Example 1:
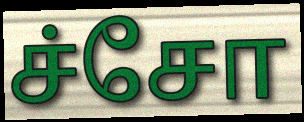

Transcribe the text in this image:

ச்சோ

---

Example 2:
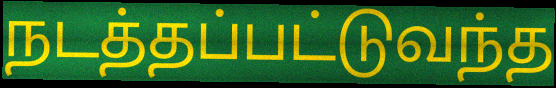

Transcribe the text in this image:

நடத்தப்பட்டுவந்த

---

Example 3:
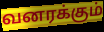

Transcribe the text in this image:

வனரக்கும்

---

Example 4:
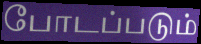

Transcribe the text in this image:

போடப்படும்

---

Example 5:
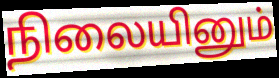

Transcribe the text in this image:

நிலையினும்